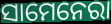
ସାମେନେରା